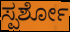
ಸ್ಪರ್ಶೋ